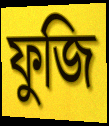
ফুজি